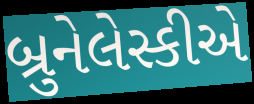
બ્રુનેલેસ્કીએ